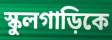
স্কুলগাড়িকে